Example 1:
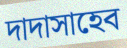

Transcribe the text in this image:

দাদাসাহেব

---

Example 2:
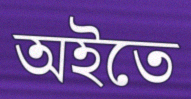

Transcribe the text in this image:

অইতে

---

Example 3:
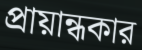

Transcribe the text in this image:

প্রায়ান্ধকার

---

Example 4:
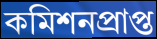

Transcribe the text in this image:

কমিশনপ্রাপ্ত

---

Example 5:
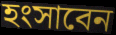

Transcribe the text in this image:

হংসাবেন